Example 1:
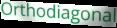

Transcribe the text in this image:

Orthodiagonal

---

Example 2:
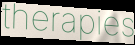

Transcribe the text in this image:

therapies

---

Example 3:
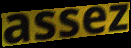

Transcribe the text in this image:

assez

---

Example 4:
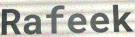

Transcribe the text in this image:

Rafeek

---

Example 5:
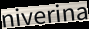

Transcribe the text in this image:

niverina